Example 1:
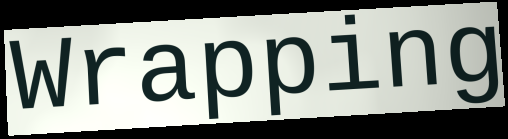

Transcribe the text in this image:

Wrapping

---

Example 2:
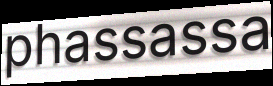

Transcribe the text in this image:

phassassa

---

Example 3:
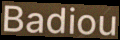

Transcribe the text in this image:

Badiou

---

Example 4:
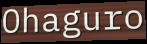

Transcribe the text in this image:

Ohaguro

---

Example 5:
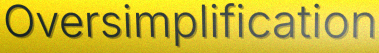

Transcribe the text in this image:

Oversimplification